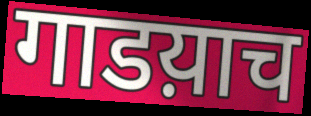
गाडय़ाच